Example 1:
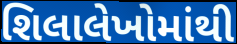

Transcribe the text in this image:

શિલાલેખોમાંથી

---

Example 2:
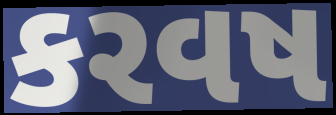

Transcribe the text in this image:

કરવષ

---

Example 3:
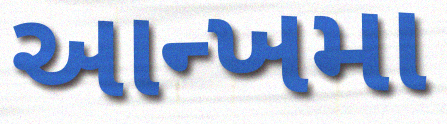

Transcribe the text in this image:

આન્ખમા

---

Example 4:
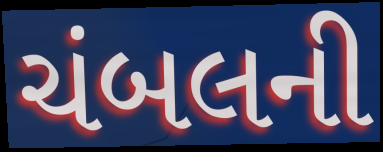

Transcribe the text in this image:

ચંબલની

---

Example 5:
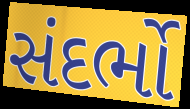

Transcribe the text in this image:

સંદર્ભો